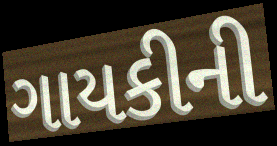
ગાયકીની